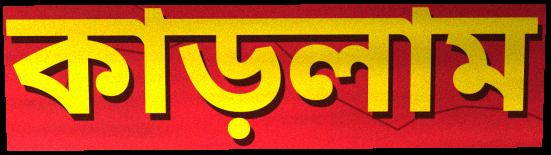
কাড়লাম